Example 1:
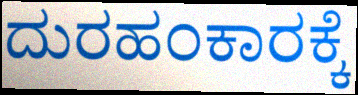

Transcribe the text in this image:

ದುರಹಂಕಾರಕ್ಕೆ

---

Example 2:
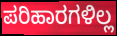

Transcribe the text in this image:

ಪರಿಹಾರಗಳಿಲ್ಲ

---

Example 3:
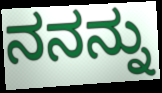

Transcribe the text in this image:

ನನನ್ನು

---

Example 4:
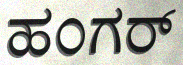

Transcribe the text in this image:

ಹಂಗರ್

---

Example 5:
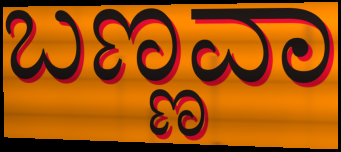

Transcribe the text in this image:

ಬಣ್ಣವಾ